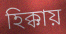
হিক্কায়